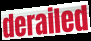
derailed